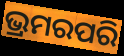
ଭ୍ରମରପରି